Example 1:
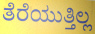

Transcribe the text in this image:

ತೆರೆಯುತ್ತಿಲ್ಲ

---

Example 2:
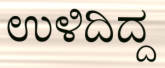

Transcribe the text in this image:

ಉಳಿದಿದ್ದ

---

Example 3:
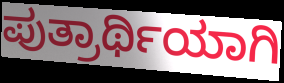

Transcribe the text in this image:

ಪುತ್ರಾರ್ಥಿಯಾಗಿ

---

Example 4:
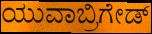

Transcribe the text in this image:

ಯುವಾಬ್ರಿಗೇಡ್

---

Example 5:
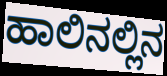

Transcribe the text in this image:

ಹಾಲಿನಲ್ಲಿನ